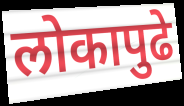
लोकापुढे